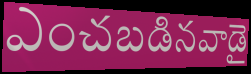
ఎంచబడినవాడై